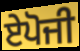
ਏਪੋਜੀ